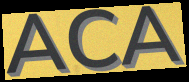
ACA